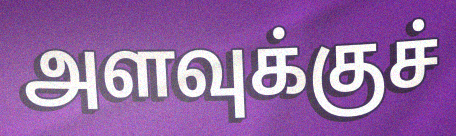
அளவுக்குச்